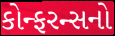
કોન્ફરન્સનો